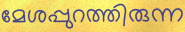
മേശപ്പുറത്തിരുന്ന